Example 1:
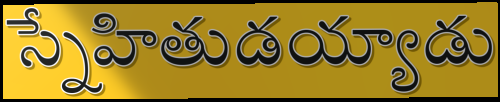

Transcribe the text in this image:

స్నేహితుడయ్యాడు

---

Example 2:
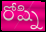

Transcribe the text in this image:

రోష్ని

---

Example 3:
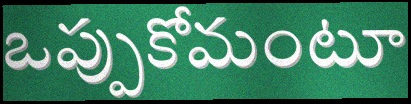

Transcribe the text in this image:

ఒప్పుకోమంటూ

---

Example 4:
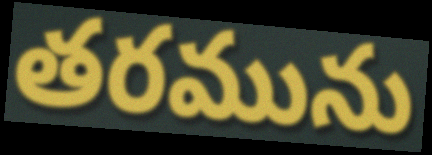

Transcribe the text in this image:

తరమును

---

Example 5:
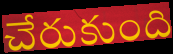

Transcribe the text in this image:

చేరుకుంది